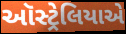
ઑસ્ટ્રેલિયાએ